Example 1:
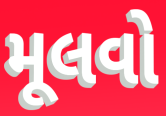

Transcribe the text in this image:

મૂલવો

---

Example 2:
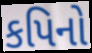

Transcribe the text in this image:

કપિનો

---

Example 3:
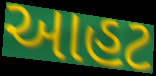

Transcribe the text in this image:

આહટ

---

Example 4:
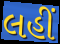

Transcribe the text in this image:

લહીં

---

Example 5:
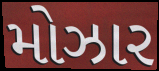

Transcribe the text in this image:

મોઝાર